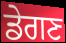
ਡੇਗਣ